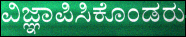
ವಿಜ್ಞಾಪಿಸಿಕೊಂಡರು